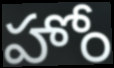
హోం